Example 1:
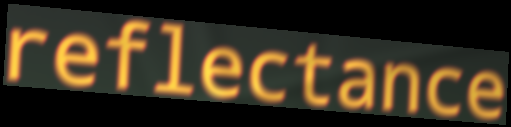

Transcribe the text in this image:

reflectance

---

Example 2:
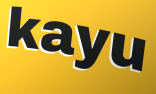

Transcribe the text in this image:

kayu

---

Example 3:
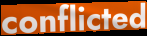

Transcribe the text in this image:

conflicted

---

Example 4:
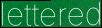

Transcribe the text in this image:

lettered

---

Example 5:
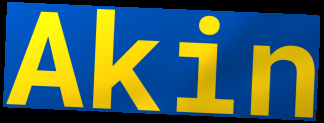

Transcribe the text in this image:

Akin